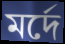
মর্দে